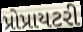
પ્રોપ્રાયટરી